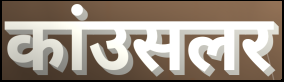
कांउसलर